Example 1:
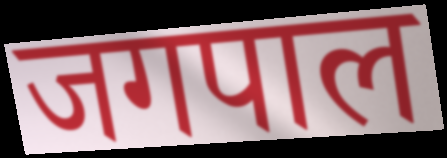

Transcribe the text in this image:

जगपाल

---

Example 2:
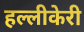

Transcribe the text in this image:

हल्लीकेरी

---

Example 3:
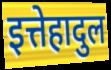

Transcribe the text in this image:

इत्तेहादुल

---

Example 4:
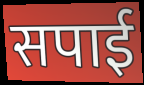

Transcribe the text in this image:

सपाई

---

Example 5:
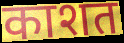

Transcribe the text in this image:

काशत